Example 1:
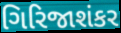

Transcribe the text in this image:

ગિરિજાશંકર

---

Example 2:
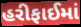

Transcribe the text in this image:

હરીફાઈમાં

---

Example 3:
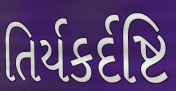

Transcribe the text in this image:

તિર્યકર્દષ્ટિ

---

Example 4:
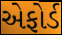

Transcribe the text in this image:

એફોર્ડ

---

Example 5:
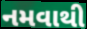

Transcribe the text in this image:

નમવાથી